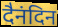
दैनंदिन